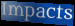
Impacts